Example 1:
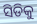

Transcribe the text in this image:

ସିଡିକୁ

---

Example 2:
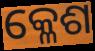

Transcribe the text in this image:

କ୍ଳେଶ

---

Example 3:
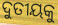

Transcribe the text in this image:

ଦୁତୀୟକୁ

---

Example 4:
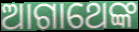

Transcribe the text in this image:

ଆଗାଥେଙ୍କ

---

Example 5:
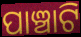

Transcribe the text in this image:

ପାଞ୍ଚାଟି